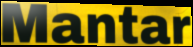
Mantar